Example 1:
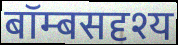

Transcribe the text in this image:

बॉम्बसदृश्य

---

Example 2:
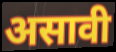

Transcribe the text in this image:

असावी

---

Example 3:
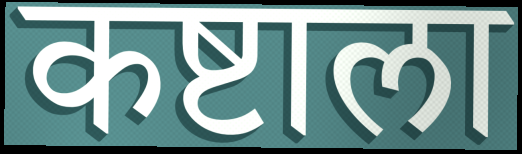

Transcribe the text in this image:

कष्टाला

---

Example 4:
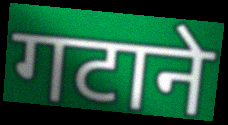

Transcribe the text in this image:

गटाने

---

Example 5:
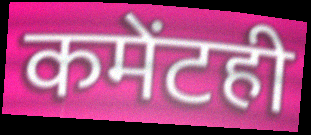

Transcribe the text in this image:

कमेंटही